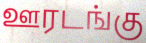
ஊரடங்கு